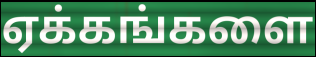
ஏக்கங்களை